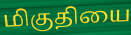
மிகுதியை